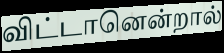
விட்டானென்றால்